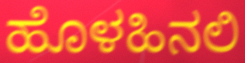
ಹೊಳಹಿನಲಿ